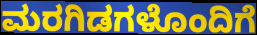
ಮರಗಿಡಗಳೊಂದಿಗೆ